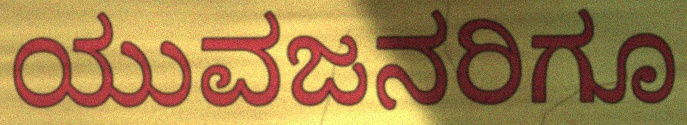
ಯುವಜನರಿಗೂ